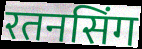
रतनसिंग